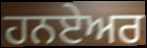
ਹਨਏਅਰ